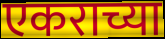
एकराच्या